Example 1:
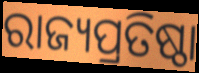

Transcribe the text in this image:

ରାଜ୍ୟପ୍ରତିଷ୍ଠା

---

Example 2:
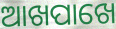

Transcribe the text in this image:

ଆଖପାଖେ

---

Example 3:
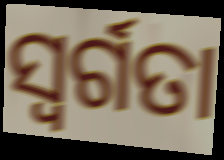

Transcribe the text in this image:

ସ୍ବର୍ଗତା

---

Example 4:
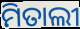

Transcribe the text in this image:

ମିତାଲୀ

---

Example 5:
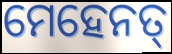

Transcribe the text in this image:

ମେହେନତ୍